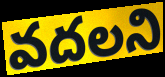
వదలని